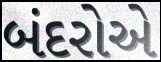
બંદરોએ